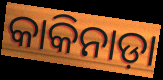
କାକିନାଡ଼ା